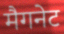
मैगनेट